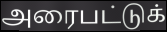
அரைபட்டுக்